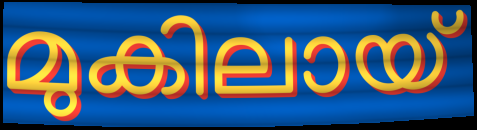
മുകിലായ്